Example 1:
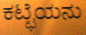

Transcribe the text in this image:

ಕಟ್ಟೆಯನು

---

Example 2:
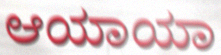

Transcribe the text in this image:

ಆಯಾಯಾ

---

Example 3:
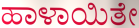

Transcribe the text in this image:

ಹಾಳಾಯಿತೇ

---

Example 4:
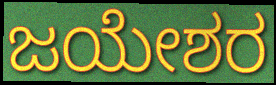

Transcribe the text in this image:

ಜಯೇಶರ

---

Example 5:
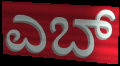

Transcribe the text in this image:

ಎಬ್